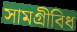
সামগ্ৰীবিধ